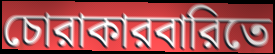
চোরাকারবারিতে